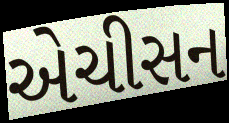
એચીસન